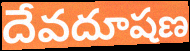
దేవదూషణ